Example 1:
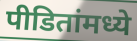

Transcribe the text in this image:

पीडितांमध्ये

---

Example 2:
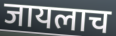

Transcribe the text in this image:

जायलाच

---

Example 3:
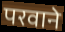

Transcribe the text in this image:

परवाने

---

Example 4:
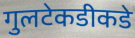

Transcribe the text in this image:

गुलटेकडीकडे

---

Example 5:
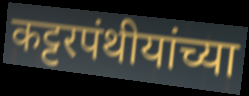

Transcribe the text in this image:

कट्टरपंथीयांच्या